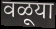
वळूया